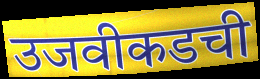
उजवीकडची